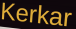
Kerkar